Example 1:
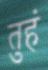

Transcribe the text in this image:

तुहं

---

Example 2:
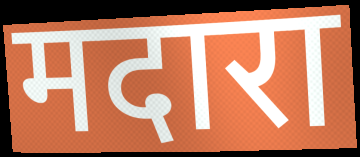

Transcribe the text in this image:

मदारा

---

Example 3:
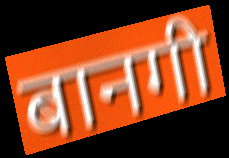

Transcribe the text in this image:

बानगी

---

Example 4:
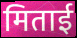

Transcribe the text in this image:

मिताई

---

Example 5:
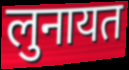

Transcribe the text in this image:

लुनायत